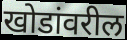
खोडांवरील